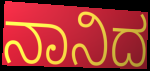
ನಾನಿದ